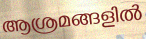
ആശ്രമങ്ങളിൽ